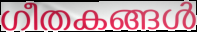
ഗീതകങ്ങൾ